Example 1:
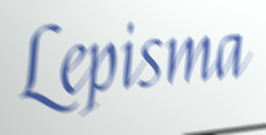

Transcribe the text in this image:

Lepisma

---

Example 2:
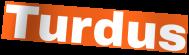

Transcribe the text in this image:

Turdus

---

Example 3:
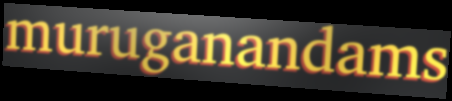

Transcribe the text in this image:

muruganandams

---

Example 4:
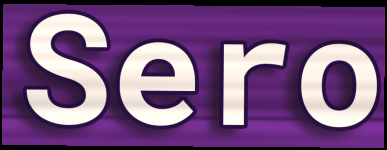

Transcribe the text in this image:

Sero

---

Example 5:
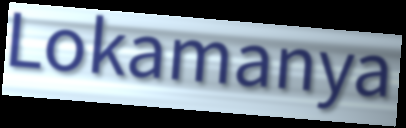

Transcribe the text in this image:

Lokamanya